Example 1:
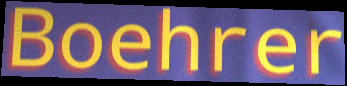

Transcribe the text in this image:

Boehrer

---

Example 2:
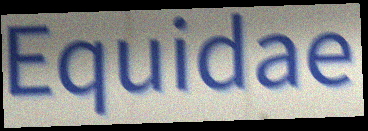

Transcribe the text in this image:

Equidae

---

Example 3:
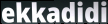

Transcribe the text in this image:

ekkadidi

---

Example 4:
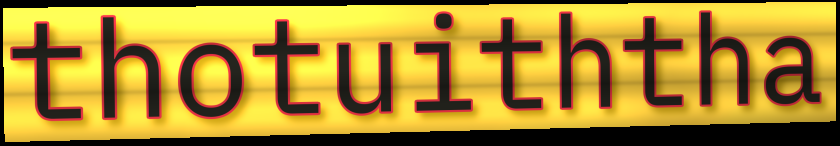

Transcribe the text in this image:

thotuiththa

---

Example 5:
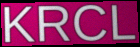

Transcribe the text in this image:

KRCL